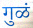
गुळं